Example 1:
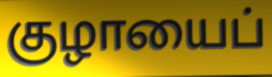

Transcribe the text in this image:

குழாயைப்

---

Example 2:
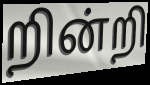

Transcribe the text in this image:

றின்றி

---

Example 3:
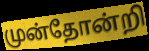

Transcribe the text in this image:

முன்தோன்றி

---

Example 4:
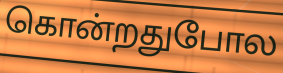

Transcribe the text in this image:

கொன்றதுபோல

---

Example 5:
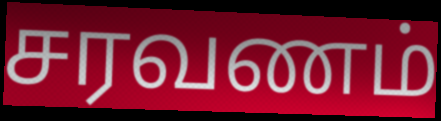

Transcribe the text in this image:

சரவணம்